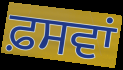
ਫ਼ਸਵਾਂ